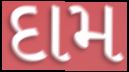
દામ